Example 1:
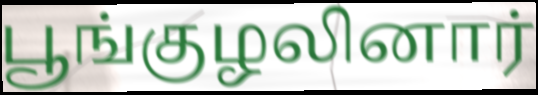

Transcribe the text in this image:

பூங்குழலினார்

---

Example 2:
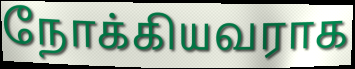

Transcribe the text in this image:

நோக்கியவராக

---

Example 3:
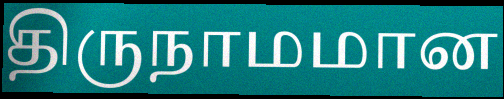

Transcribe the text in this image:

திருநாமமான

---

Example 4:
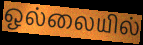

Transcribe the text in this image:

ஒல்லையில்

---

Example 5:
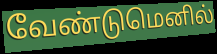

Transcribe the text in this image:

வேண்டுமெனில்